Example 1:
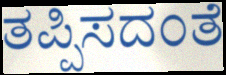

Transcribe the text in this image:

ತಪ್ಪಿಸದಂತೆ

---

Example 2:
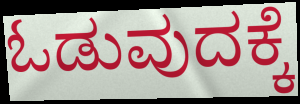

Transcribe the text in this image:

ಓಡುವುದಕ್ಕೆ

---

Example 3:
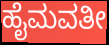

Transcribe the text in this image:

ಹೈಮವತೀ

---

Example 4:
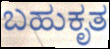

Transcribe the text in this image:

ಬಹುಕೃತ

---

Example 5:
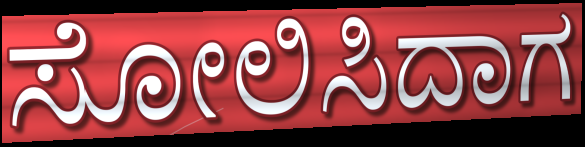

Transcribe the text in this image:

ಸೋಲಿಸಿದಾಗ